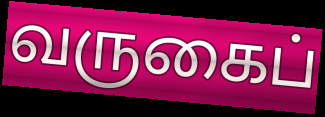
வருகைப்